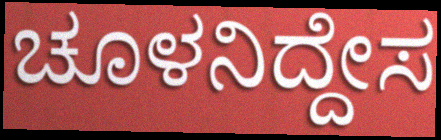
ಚೂಳನಿದ್ದೇಸ